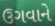
ઉગવાને